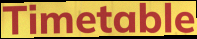
Timetable